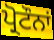
ਪ੍ਰੋਟੌਨਾਂ